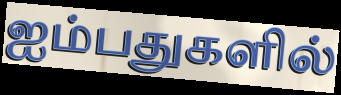
ஐம்பதுகளில்